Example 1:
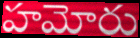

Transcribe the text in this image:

హమోరు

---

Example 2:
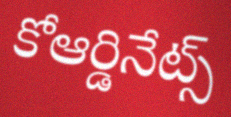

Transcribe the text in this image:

కోఆర్డినేట్స్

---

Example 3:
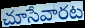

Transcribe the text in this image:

చూసేవారట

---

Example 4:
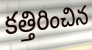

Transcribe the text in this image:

కత్తిరించిన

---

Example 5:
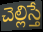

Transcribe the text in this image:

చెల్లిస్తే